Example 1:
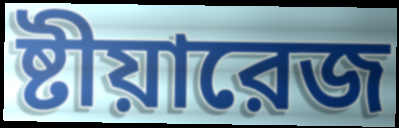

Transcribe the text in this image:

ষ্টীয়ারেজ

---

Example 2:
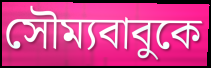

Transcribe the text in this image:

সৌম্যবাবুকে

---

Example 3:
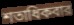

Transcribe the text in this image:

শতাধিকবার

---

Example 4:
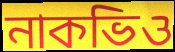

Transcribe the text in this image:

নাকভিও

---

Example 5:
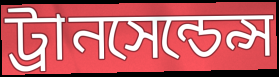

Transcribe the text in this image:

ট্রানসেন্ডেন্স